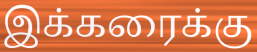
இக்கரைக்கு